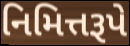
નિમિત્તરૂપે